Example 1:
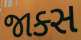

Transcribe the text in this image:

જાક્સ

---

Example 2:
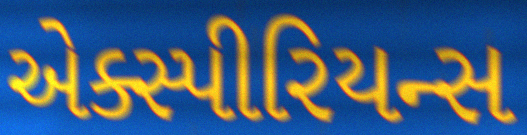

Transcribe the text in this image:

એક્સ્પીરિયન્સ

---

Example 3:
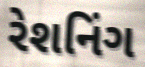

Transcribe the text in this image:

રેશનિંગ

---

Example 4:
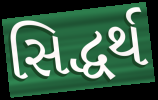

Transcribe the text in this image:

સિદ્ધર્થ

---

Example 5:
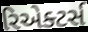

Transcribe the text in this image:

રિએક્ટર્સ